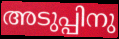
അടുപ്പിനു